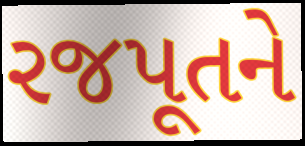
રજપૂતને